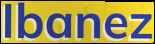
Ibanez